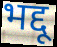
भद्दू